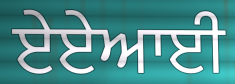
ਏਏਆਈ